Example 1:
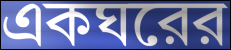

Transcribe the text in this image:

একঘরের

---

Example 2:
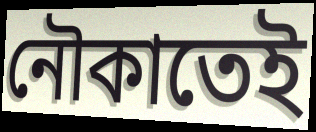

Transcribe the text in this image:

নৌকাতেই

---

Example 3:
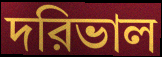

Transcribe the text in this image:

দরিভাল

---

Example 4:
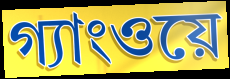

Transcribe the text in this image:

গ্যাংওয়ে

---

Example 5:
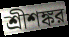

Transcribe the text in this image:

শ্রীশঙ্কর